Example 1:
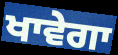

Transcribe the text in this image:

ਖਾਵੇਗਾ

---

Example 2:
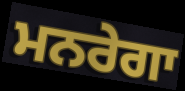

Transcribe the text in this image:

ਮਨਰੇਗਾ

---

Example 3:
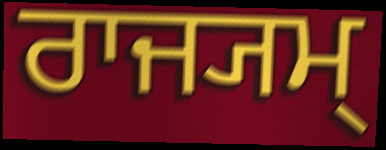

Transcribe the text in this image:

ਰਾਜ੍ਯਮ੍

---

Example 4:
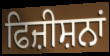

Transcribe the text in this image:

ਫਿਜ਼ੀਸ਼ਨਾਂ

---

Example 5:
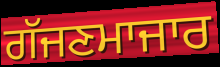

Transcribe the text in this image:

ਗੱਜਣਮਾਜਾਰ